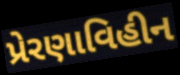
પ્રેરણાવિહીન